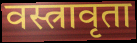
वस्त्रावृता